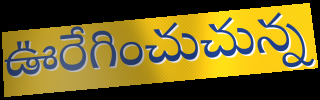
ఊరేగించుచున్న